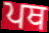
ਪਥ